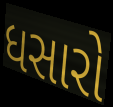
ધસારો